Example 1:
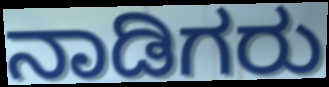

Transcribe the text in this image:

ನಾಡಿಗರು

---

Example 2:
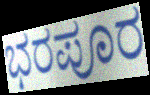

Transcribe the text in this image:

ಭರಪೂರ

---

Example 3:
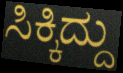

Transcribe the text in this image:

ಸಿಕ್ಕಿದ್ದು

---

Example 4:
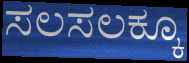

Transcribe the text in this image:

ಸಲಸಲಕ್ಕೂ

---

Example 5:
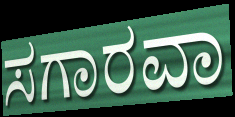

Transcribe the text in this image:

ಸಗಾರವಾ